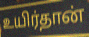
உயிர்தான்